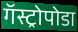
गॅस्ट्रोपोडा